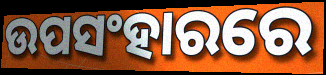
ଉପସଂହାରରେ